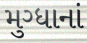
મુગ્ધાનાં